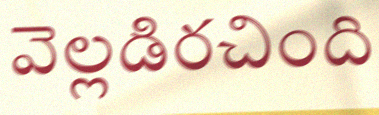
వెల్లడిరచింది